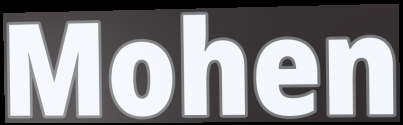
Mohen